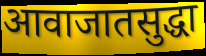
आवाजातसुद्धा